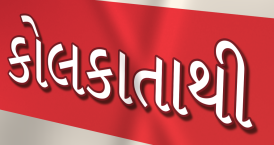
કોલકાતાથી